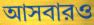
আসবারও